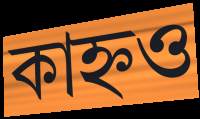
কাহ্নও